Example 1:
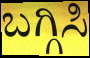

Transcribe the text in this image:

ಬಗ್ಗಿಸಿ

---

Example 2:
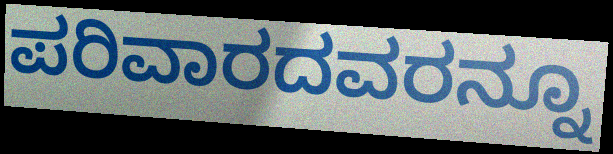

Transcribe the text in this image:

ಪರಿವಾರದವರನ್ನೂ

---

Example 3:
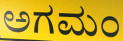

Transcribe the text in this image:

ಅಗಮಂ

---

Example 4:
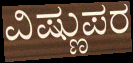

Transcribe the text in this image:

ವಿಷ್ಣುಪರ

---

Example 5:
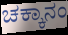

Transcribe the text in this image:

ಚಕ್ಕಾನಂ